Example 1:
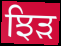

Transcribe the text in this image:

ਝਿੜ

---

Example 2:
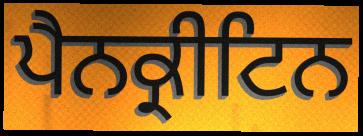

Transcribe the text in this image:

ਪੈਨਕ੍ਰੀਟਿਨ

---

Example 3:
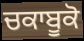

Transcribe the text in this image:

ਚਕਾਬੂਕੋ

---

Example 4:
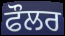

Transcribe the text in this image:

ਫੌਲਰ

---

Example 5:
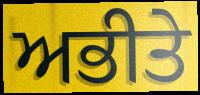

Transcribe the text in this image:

ਅਭੀਤੇ